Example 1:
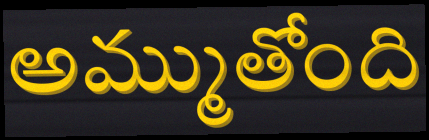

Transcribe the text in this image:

అమ్ముతోంది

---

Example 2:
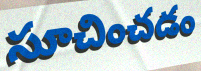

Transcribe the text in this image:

సూచించడం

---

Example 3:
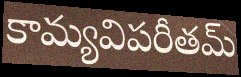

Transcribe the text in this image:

కామ్యవిపరీతమ్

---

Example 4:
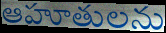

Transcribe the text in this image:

ఆహూతులను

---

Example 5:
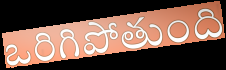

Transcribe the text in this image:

ఒరిగిపోతుంది